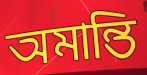
অমান্তি